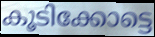
കൂടിക്കോട്ടെ